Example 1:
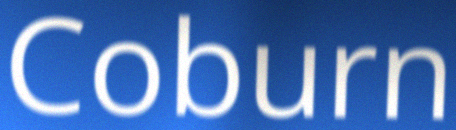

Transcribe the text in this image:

Coburn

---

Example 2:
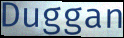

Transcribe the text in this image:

Duggan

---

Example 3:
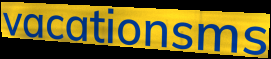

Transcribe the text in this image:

vacationsms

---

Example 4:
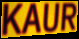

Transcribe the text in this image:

KAUR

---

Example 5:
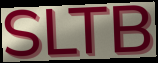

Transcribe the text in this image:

SLTB